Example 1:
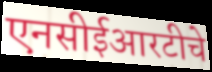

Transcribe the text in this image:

एनसीईआरटीचे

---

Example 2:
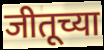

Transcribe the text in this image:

जीतूच्या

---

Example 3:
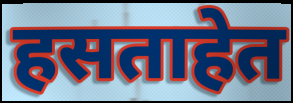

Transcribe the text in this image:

हसताहेत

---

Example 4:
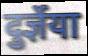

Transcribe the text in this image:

दुर्ज्ञेया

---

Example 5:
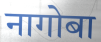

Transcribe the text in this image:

नागोबा